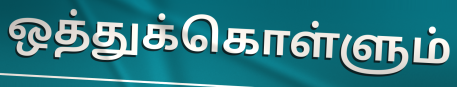
ஒத்துக்கொள்ளும்